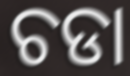
ଚଡା